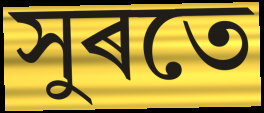
সুৰতে